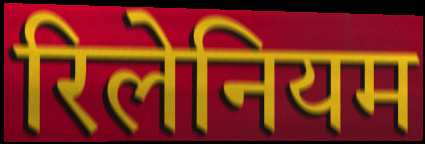
रिलेनियम